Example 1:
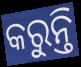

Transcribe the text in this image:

କରୁନ୍ତି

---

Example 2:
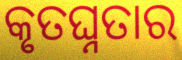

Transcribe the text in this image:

କୃତଘ୍ନତାର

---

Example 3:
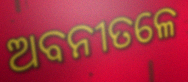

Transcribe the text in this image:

ଅବନୀତଳେ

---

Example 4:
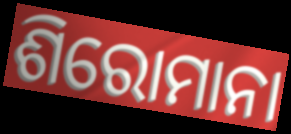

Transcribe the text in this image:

ଶିରୋମାନା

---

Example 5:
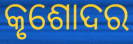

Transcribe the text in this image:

କୃଶୋଦର